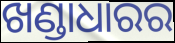
ଖଣ୍ଡାଧାରର